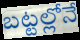
బట్టల్లోనే